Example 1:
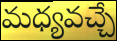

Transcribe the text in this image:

మధ్యవచ్చే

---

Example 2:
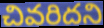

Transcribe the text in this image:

చివరిదని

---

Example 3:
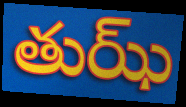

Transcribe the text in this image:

తుఝ్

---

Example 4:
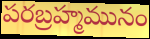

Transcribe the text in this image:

పరబ్రహ్మమునం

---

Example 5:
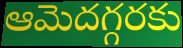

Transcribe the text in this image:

ఆమెదగ్గరకు